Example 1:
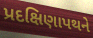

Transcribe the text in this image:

પ્રદક્ષિણાપથને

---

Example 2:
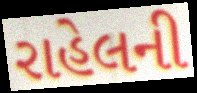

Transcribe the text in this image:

રાહેલની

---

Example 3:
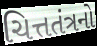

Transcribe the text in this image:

ચિત્તતંત્રનો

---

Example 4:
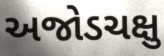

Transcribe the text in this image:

અજોડચક્ષુ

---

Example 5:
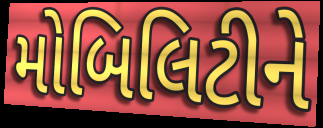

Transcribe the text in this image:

મોબિલિટીને